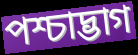
পশ্চাদ্ভাগ